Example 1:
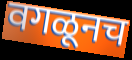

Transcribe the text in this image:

वगळूनच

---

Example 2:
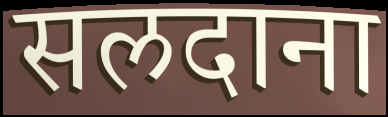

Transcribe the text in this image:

सलदाना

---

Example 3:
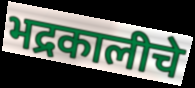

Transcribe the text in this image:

भद्रकालीचे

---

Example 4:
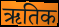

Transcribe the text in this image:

ऋतिक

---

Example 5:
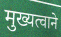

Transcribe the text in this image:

मुख्यत्वाने